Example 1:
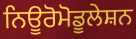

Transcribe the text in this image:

ਨਿਊਰੋਮੋਡੂਲੇਸ਼ਨ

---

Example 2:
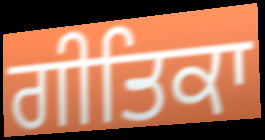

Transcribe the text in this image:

ਗੀਤਿਕਾ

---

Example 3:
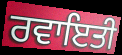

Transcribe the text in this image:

ਰਵਾਇਤੀ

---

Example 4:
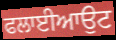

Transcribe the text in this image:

ਫਲਾਈਆਉਟ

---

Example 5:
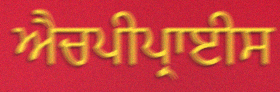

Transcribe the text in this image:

ਐਚਪੀਪ੍ਰਾਈਸ